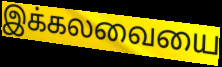
இக்கலவையை